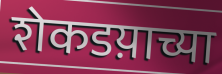
शेकडय़ाच्या